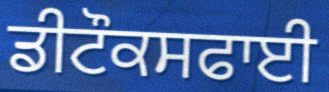
ਡੀਟੌਕਸਫਾਈ